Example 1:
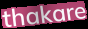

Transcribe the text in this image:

thakare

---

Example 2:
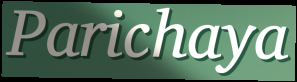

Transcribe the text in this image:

Parichaya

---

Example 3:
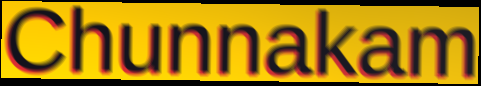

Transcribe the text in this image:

Chunnakam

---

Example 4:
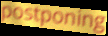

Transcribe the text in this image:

postponing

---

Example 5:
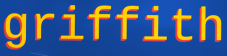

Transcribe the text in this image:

griffith